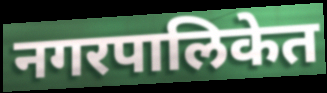
नगरपालिकेत